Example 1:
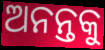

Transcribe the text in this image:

ଅନନ୍ତକୁ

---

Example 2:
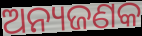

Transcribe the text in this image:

ଅନ୍ୟଜଣକ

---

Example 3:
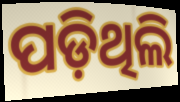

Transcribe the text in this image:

ପଡ଼ିଥିଲି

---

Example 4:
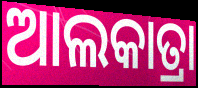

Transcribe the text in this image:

ଆଲକାତ୍ରା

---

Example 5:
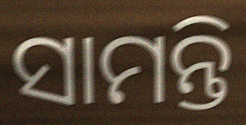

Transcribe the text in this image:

ସାମନ୍ତି